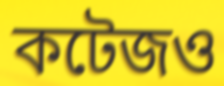
কটেজও